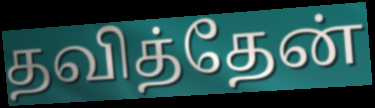
தவித்தேன்